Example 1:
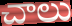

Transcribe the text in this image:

చాలు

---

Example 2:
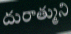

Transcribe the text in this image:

దురాత్ముని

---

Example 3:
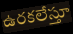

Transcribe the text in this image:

ఉరకలేస్తూ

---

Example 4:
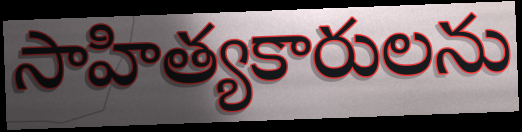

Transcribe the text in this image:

సాహిత్యకారులను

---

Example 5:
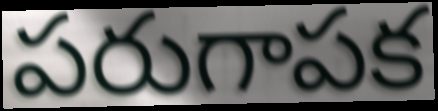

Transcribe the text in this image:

పరుగాపక